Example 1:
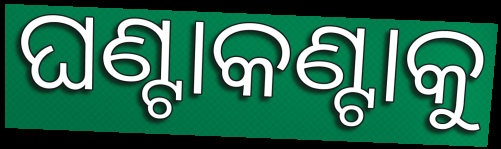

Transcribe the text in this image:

ଘଣ୍ଟାକଣ୍ଟାକୁ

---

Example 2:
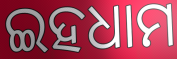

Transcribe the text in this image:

ଇହଧାମ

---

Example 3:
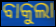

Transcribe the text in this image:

ବାକୁଲା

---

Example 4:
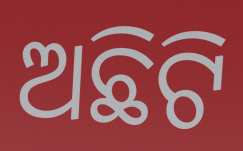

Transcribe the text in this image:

ଅଛିଟି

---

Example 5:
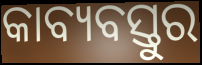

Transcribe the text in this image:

କାବ୍ୟବସ୍ତୁର